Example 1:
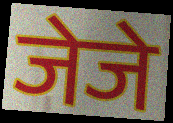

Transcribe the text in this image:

जेजे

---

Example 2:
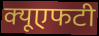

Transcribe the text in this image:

क्यूएफटी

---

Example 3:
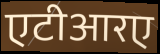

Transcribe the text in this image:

एटीआरए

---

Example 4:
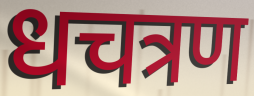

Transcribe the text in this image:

धचत्रण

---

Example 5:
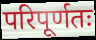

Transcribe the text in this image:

परिपूर्णतः